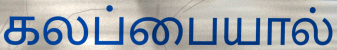
கலப்பையால்